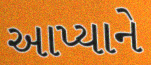
આપ્યાને